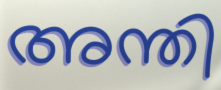
അന്തി